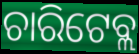
ଚାରିଟେବ୍ଲ